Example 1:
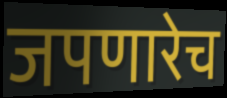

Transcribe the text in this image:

जपणारेच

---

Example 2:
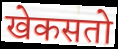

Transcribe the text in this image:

खेकसतो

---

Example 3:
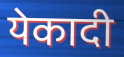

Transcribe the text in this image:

येकादी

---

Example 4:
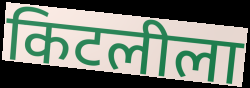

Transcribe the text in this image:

किटलीला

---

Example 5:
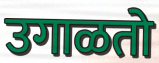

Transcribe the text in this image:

उगाळतो